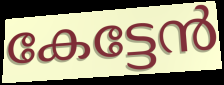
കേട്ടേൻ